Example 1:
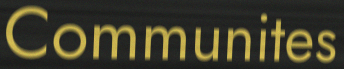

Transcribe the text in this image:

Communites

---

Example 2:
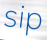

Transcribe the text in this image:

sip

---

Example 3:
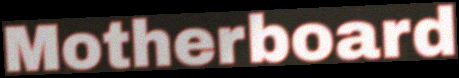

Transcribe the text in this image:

Motherboard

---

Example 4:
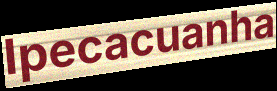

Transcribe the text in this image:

Ipecacuanha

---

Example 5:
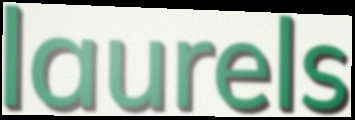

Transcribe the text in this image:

laurels